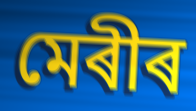
মেৰীৰ